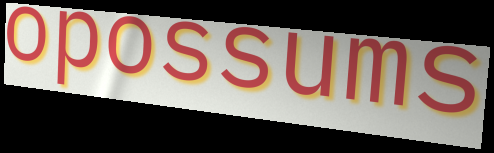
opossums